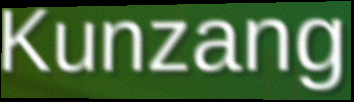
Kunzang